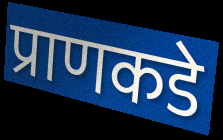
प्राणकडे